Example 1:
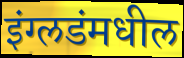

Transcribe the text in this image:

इंग्लडंमधील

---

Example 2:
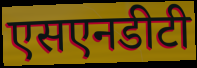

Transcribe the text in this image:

एसएनडीटी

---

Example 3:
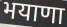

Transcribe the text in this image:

भयाणा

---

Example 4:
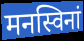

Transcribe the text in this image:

मनस्विनां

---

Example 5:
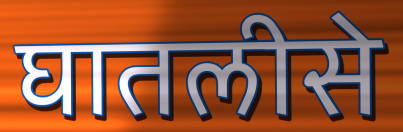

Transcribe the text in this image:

घातलीसे